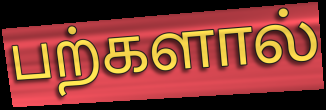
பற்களால்